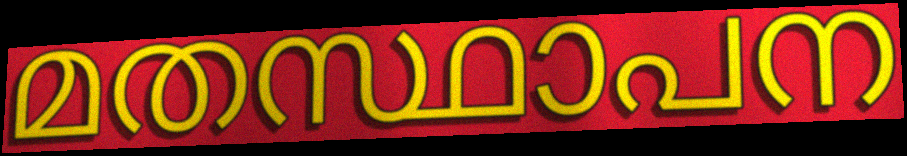
മതസ്ഥാപന